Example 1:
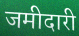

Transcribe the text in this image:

जमीदारी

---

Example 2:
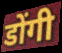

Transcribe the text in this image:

डोंगी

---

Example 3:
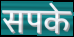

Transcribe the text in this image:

सपके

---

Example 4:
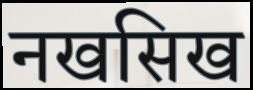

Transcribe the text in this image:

नखसिख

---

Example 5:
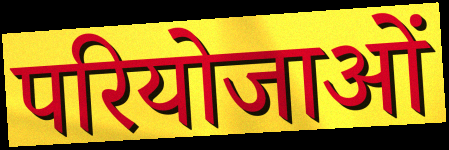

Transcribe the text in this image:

परियोजाओं